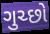
ગુચ્છો